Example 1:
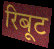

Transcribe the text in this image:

रिबूट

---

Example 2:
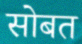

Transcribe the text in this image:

सोबत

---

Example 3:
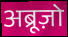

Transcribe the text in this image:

अब्रूज़ो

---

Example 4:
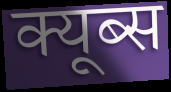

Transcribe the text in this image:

क्यूब्स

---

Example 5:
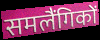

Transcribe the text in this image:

समलैंगिकों